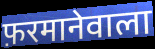
फ़रमानेवाला